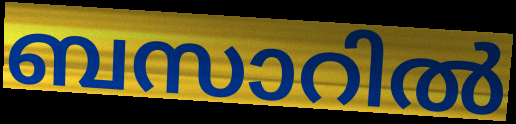
ബസാറിൽ